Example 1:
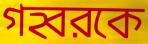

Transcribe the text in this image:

গহ্বরকে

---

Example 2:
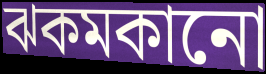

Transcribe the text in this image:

ঝকমকানো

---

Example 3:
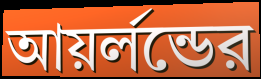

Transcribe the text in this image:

আয়র্লন্ডের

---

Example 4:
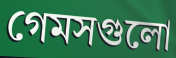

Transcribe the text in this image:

গেমসগুলো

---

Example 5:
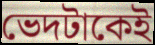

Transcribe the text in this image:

ভেদটাকেই